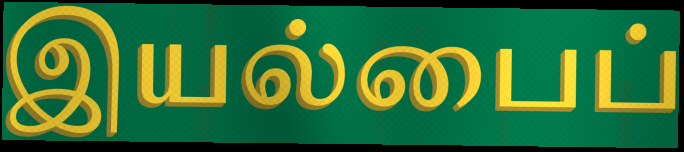
இயல்பைப்